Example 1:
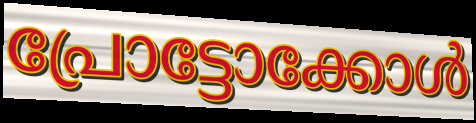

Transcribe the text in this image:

പ്രോട്ടോക്കോൾ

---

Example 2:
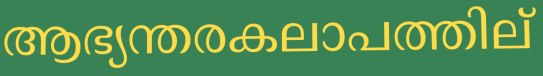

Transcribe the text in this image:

ആഭ്യന്തരകലാപത്തില്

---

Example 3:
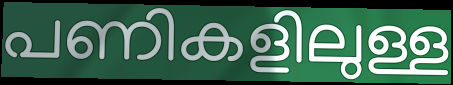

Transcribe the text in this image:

പണികളിലുള്ള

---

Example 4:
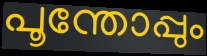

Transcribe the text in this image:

പൂന്തോപ്പും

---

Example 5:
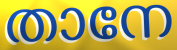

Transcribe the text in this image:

താനേ